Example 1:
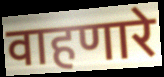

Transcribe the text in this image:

वाहणारे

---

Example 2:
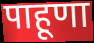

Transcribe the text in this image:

पाहूणा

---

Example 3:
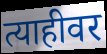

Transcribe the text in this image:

त्याहीवर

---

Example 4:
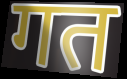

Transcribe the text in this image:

गत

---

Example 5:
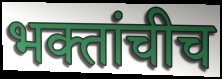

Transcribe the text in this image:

भक्तांचीच